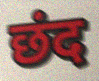
छंद